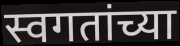
स्वगतांच्या